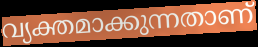
വ്യക്തമാക്കുന്നതാണ്